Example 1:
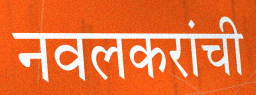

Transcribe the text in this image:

नवलकरांची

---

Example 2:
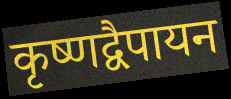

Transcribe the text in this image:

कृष्णद्वैपायन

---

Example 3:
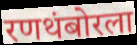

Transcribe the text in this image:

रणथंबोरला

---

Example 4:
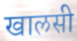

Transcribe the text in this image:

खालसी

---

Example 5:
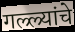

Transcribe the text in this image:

गल्ल्यांचे